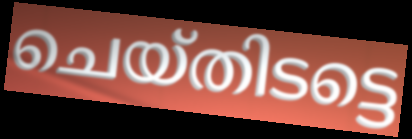
ചെയ്തിടട്ടെ